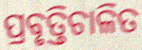
ପ୍ରବୃତ୍ତିଚାଳିତ